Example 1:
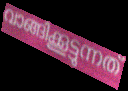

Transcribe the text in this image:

വാങ്ങിക്കൂട്ടുന്നത്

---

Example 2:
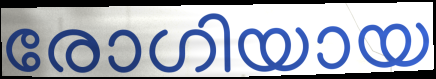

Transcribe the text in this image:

രോഗിയായ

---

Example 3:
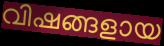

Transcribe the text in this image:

വിഷങ്ങളായ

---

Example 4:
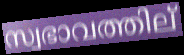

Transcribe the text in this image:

സ്വഭാവത്തില്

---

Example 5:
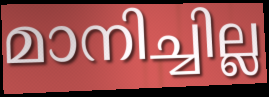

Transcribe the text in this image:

മാനിച്ചില്ല